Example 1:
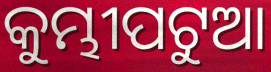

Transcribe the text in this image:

କୁମ୍ଭୀପଟୁଆ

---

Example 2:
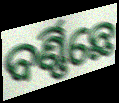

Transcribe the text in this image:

ବର୍ଣ୍ଣିଛେ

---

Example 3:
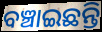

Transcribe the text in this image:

ବଞ୍ଚାଇଛନ୍ତି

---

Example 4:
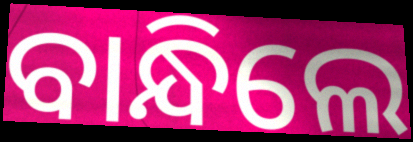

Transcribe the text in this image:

ବାନ୍ଧିଲେ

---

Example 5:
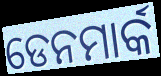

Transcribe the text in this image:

ଡେନମାର୍କ